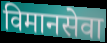
विमानसेवा